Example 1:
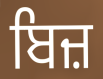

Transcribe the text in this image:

ਬਿਜ਼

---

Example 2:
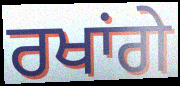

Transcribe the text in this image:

ਰਖਾਂਗੇ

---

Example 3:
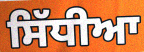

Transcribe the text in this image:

ਸਿੱਧੀਆ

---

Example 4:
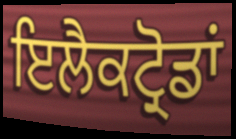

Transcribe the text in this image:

ਇਲੈਕਟ੍ਰੋਡਾਂ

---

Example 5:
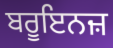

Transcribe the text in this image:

ਬਰੂਇਨਜ਼